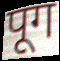
पूग